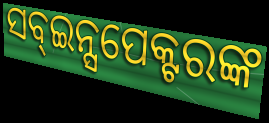
ସବ୍ଇନ୍ସପେକ୍ଟରଙ୍କ